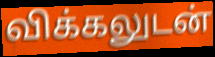
விக்கலுடன்